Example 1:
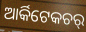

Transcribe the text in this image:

ଆର୍କିଟେକଚର୍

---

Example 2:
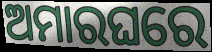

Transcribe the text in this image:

ଅମାରଘରେ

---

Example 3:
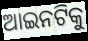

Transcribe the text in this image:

ଆଇନଟିକୁ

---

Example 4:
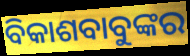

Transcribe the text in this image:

ବିକାଶବାବୁଙ୍କର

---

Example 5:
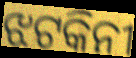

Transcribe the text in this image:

ଝଟକିନୀ